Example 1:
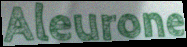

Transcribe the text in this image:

Aleurone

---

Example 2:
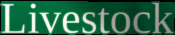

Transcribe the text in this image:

Livestock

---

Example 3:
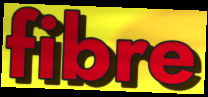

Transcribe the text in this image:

fibre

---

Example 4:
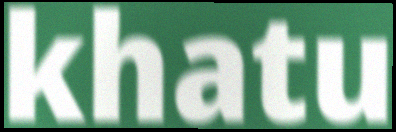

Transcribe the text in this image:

khatu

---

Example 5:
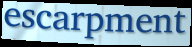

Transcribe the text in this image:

escarpment